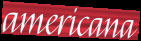
americana